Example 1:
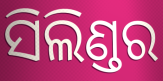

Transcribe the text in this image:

ସିଲିଣ୍ଡର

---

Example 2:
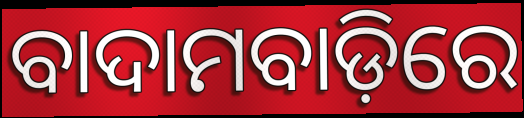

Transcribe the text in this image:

ବାଦାମବାଡ଼ିରେ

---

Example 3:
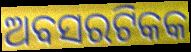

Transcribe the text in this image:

ଅବସରଟିକକ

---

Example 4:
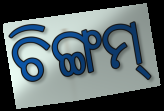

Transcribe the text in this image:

ଚିଙ୍ଗମ୍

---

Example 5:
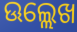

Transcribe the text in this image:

ଊଲ୍ଲେଖ